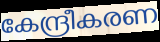
കേന്ദ്രീകരണ